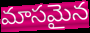
మాసమైన